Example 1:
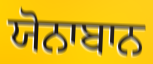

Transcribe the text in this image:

ਯੋਨਾਬਾਨ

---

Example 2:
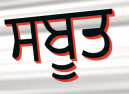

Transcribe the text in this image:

ਸਬੂਤ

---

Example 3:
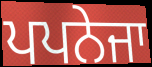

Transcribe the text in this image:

ਪਪਨੇਜਾ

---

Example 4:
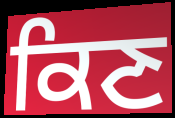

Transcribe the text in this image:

ਕਿਣ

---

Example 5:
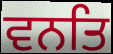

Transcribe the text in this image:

ਵਨਤਿ